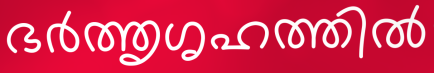
ഭർത്തൃഗൃഹത്തിൽ